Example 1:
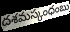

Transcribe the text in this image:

దశమస్కంధంబు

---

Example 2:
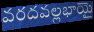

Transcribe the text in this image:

వరదవల్లభాయై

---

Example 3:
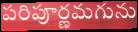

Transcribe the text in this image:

పరిపూర్ణమగును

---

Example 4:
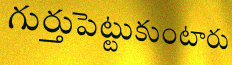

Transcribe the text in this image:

గుర్తుపెట్టుకుంటారు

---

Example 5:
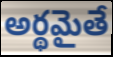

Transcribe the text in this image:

అర్థమైతే